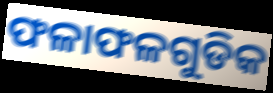
ଫଳାଫଳଗୁଡିକ